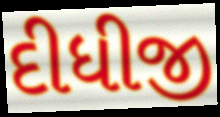
દીધીજી